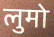
लुमो